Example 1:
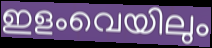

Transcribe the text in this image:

ഇളംവെയിലും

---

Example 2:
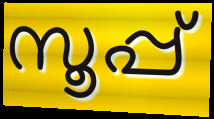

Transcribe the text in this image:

സൂപ്പ്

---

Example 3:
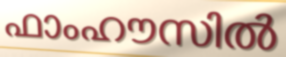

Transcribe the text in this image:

ഫാംഹൗസിൽ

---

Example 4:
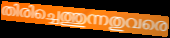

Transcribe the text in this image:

തിരിച്ചെത്തുന്നതുവരെ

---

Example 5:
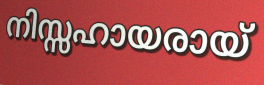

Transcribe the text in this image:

നിസ്സഹായരായ്